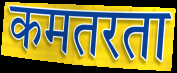
कमतरता